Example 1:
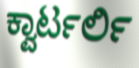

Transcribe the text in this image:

ಕ್ವಾರ್ಟರ್ಲಿ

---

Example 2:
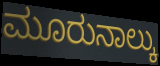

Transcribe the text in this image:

ಮೂರುನಾಲ್ಕು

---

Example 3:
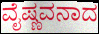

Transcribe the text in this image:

ವೈಷ್ಣವನಾದ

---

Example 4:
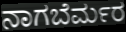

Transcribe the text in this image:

ನಾಗಬೆರ್ಮರ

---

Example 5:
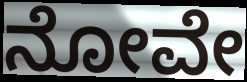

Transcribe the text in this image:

ನೋವೇ